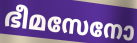
ഭീമസേനോ